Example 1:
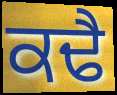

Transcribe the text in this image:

ਕਢੈ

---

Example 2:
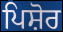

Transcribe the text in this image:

ਪਿਸ਼ੋਰ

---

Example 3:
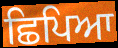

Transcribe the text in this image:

ਛਿਪਿਆ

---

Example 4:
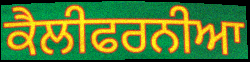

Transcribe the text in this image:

ਕੈਲੀਫਰਨੀਆ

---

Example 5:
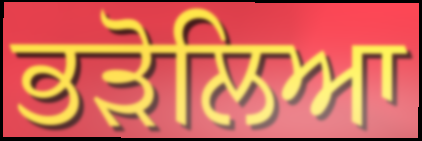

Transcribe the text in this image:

ਭੜੋਲਿਆ